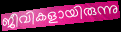
ജീവികളായിരുന്നു